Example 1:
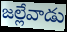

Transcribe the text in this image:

జల్లేవాడు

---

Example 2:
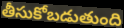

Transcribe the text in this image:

తీసుకోబడుతుంది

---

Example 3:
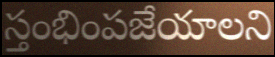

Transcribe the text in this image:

స్తంభింపజేయాలని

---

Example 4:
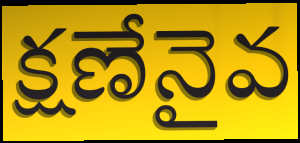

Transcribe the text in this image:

క్షణేనైవ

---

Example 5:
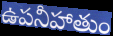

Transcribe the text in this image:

ఉపనీహాతుం